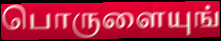
பொருளையுங்